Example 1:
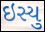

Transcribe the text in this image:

ઇસ્યુ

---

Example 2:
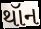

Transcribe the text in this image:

થૉન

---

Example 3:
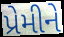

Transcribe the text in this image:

પ્રેમીને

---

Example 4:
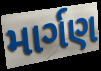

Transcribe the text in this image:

માર્ગણ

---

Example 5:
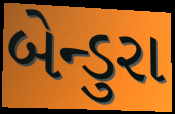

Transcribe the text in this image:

બેન્ડુરા